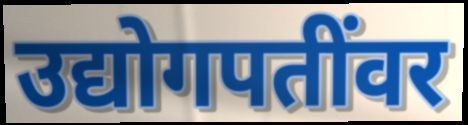
उद्योगपतींवर